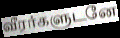
வீரர்களுடனே